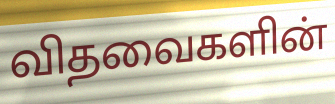
விதவைகளின்